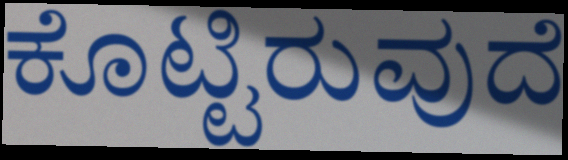
ಕೊಟ್ಟಿರುವುದೆ